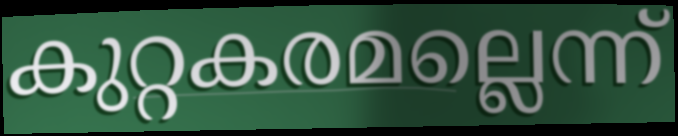
കുറ്റകരമല്ലെന്ന്